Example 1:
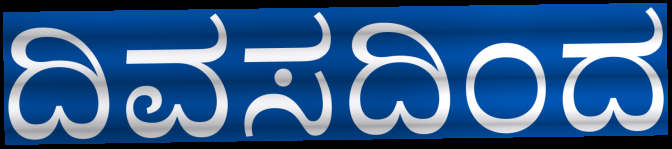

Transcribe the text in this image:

ದಿವಸದಿಂದ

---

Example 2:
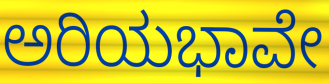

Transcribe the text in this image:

ಅರಿಯಭಾವೇ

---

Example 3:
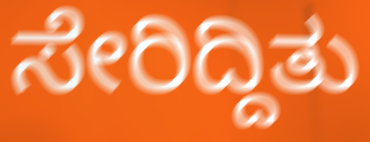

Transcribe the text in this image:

ಸೇರಿದ್ದಿತು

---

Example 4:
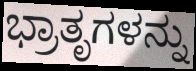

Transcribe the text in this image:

ಭ್ರಾತೃಗಳನ್ನು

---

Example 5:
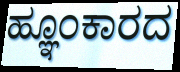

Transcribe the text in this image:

ಹ್ಞೂಂಕಾರದ